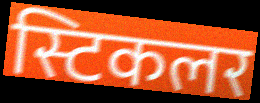
स्टिकलर